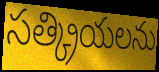
సత్క్రియలను